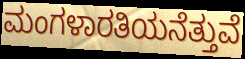
ಮಂಗಳಾರತಿಯನೆತ್ತುವೆ